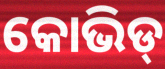
କୋଭିଡ୍